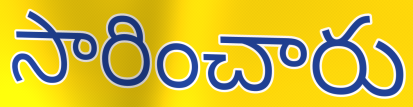
సారించారు